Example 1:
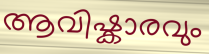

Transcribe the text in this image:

ആവിഷ്കാരവും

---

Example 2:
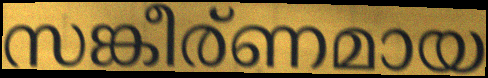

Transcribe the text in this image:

സങ്കീര്ണമായ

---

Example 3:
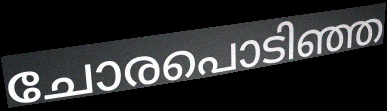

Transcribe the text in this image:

ചോരപൊടിഞ്ഞ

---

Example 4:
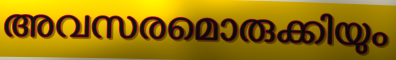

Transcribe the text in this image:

അവസരമൊരുക്കിയും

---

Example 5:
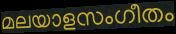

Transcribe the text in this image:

മലയാളസംഗീതം